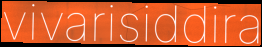
vivarisiddira